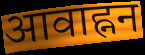
आवाह्नन